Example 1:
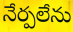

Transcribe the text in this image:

నేర్పలేను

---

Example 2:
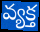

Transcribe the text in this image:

వ్యక్త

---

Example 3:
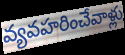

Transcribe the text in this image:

వ్యవహరించేవాళ్లు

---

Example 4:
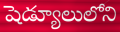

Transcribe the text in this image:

షెడ్యూలులోని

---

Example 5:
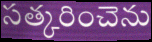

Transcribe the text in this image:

సత్కరించెను